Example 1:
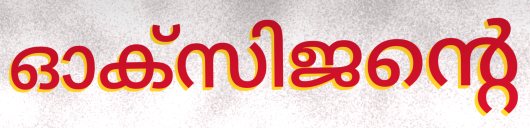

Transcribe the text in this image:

ഓക്സിജന്റെ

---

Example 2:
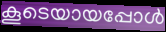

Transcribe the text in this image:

കൂടെയായപ്പോൾ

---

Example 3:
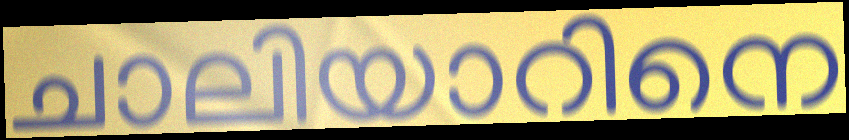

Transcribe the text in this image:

ചാലിയാറിനെ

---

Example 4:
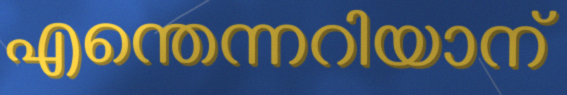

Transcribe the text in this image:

എന്തെന്നറിയാന്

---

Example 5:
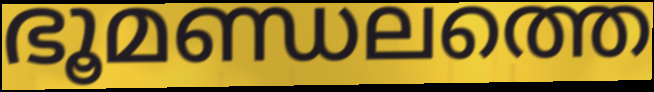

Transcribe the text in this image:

ഭൂമണ്ഡലത്തെ